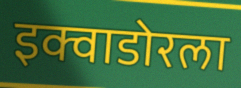
इक्वाडोरला